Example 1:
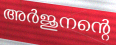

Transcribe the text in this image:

അർജുനന്റെ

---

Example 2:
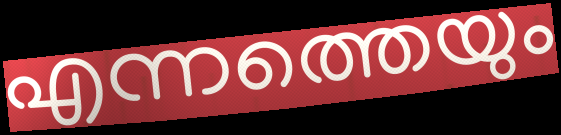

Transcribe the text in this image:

എന്നത്തെയും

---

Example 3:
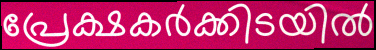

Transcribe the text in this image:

പ്രേക്ഷകർക്കിടയിൽ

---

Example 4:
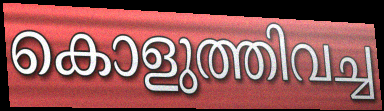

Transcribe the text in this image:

കൊളുത്തിവച്ച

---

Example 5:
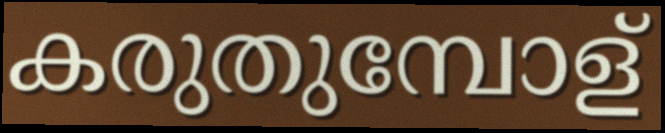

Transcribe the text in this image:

കരുതുമ്പോള്